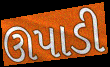
ઊપાડી